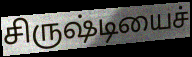
சிருஷ்டியைச்